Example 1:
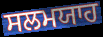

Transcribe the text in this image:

ਸਲਮਯਾਹ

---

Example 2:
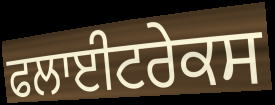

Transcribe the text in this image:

ਫਲਾਈਟਰੇਕਸ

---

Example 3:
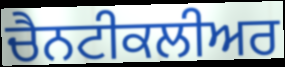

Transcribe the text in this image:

ਚੈਨਟੀਕਲੀਅਰ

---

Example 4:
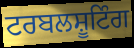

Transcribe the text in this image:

ਟਰਬਲਸ਼ੂਟਿੰਗ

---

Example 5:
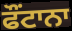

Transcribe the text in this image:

ਫੌਂਟਾਨਾ